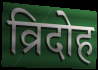
व्रिदोह